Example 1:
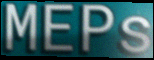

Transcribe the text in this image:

MEPs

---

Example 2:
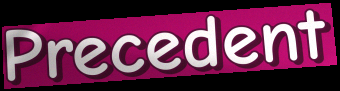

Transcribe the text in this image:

Precedent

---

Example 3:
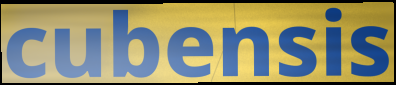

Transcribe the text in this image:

cubensis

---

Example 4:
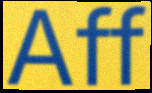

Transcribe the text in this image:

Aff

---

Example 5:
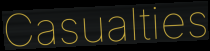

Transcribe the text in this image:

Casualties